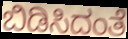
ಬಿಡಿಸಿದಂತೆ